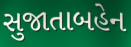
સુજાતાબહેન